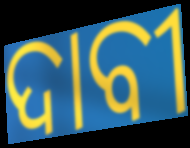
ଦାବୀ